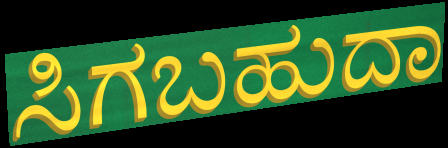
ಸಿಗಬಹುದಾ